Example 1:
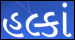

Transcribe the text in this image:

હલ્કાં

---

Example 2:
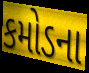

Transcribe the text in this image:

કમોડના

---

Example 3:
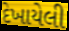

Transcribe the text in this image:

દેખાયેલી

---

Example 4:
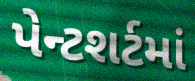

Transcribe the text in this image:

પેન્ટશર્ટમાં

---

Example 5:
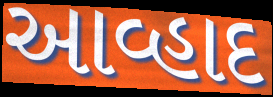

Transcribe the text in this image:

આવ્હાદ